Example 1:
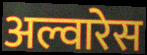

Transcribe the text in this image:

अल्वारेस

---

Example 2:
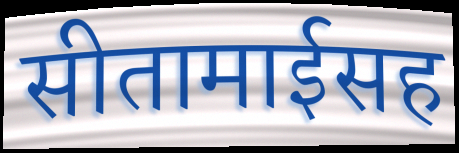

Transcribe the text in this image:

सीतामाईसह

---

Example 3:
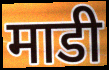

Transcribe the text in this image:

माडी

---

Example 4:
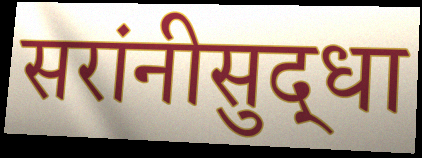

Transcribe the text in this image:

सरांनीसुद्धा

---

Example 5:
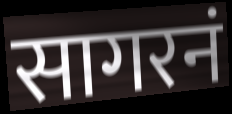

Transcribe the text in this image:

सागरनं